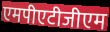
एमपीएटीजीएम